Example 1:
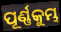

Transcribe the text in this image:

ପୂର୍ଣ୍ଣକୁମ୍ଭ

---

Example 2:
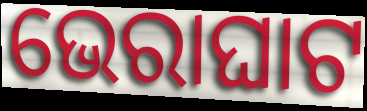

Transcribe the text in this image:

ଭେରାଘାଟ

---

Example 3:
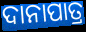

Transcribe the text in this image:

ଦାନାପାତ୍ର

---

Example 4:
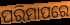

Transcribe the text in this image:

ପରିମାପରେ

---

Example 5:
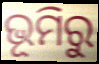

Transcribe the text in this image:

ଭୂମିରୁ